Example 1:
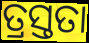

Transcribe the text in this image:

ତ୍ରସ୍ତତା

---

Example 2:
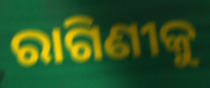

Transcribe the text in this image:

ରାଗିଣୀକୁ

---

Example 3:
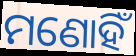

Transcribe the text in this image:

ମଣୋହିଁ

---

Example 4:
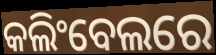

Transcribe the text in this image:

କଲିଂବେଲରେ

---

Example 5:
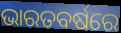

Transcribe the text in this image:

ଭାରତବର୍ଷରେ